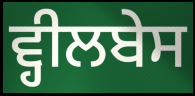
ਵ੍ਹੀਲਬੇਸ